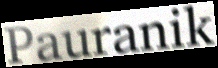
Pauranik